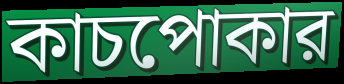
কাচপোকার